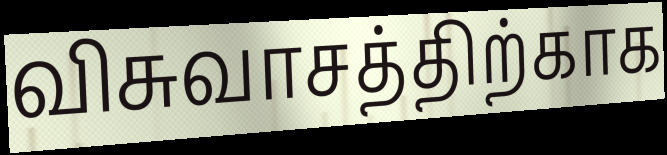
விசுவாசத்திற்காக